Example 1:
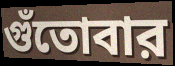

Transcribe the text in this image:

গুঁতোবার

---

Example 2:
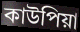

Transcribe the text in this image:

কাউপিয়া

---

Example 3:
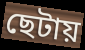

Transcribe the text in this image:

ছেটায়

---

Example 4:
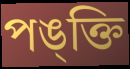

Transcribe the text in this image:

পঙ্‌ক্তি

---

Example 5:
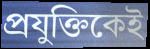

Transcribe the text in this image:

প্রযুক্তিকেই